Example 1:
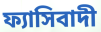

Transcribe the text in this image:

ফ্যাসিবাদী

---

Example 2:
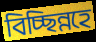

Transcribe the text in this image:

বিচ্ছিন্নহে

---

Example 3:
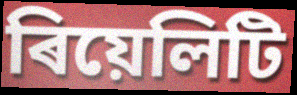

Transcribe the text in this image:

ৰিয়েলিটি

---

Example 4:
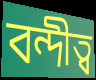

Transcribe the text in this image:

বন্দীত্ব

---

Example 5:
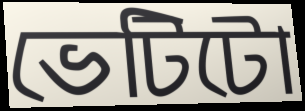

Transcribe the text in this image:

ভেটিটো